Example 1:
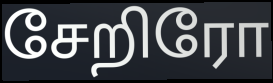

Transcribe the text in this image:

சேறிரோ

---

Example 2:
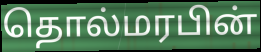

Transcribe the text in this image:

தொல்மரபின்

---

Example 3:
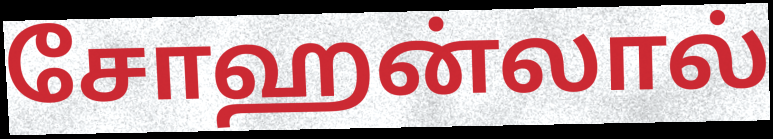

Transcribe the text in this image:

சோஹன்லால்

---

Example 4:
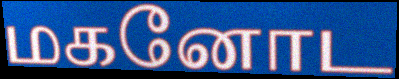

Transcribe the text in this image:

மகனோட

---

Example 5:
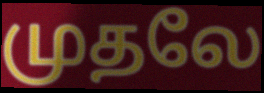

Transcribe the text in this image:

முதலே